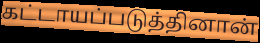
கட்டாயப்படுத்தினான்